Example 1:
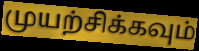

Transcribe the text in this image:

முயற்சிக்கவும்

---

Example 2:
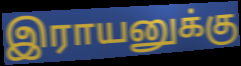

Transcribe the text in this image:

இராயனுக்கு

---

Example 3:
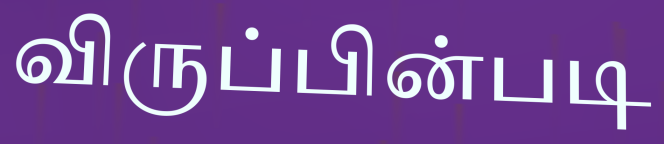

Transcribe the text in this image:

விருப்பின்படி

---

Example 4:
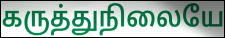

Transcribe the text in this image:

கருத்துநிலையே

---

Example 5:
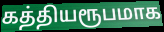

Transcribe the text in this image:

கத்தியரூபமாக